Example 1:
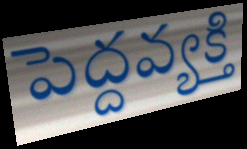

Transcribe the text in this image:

పెద్దవ్యక్తి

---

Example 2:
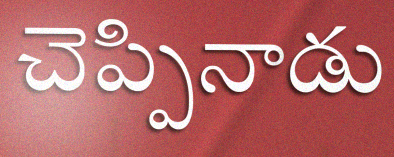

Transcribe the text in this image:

చెప్పినాడు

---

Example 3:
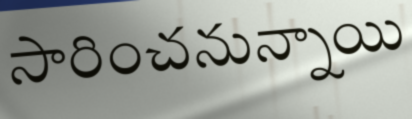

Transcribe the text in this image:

సారించనున్నాయి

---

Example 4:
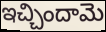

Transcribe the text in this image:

ఇచ్చిందామె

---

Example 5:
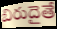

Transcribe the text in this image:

బిరుదైతే